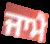
ਜਾਮੈ